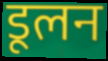
डूलन